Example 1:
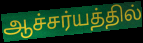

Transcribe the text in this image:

ஆச்சர்யத்தில்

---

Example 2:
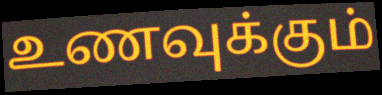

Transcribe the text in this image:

உணவுக்கும்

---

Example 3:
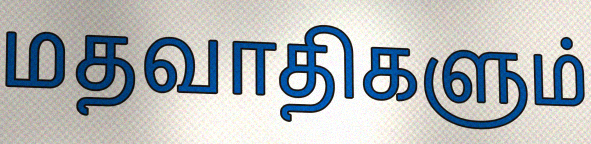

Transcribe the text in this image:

மதவாதிகளும்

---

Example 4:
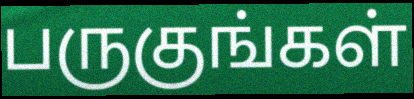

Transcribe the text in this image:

பருகுங்கள்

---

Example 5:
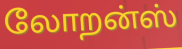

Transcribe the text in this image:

லோறன்ஸ்